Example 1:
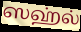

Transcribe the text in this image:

ஸஹ்ல்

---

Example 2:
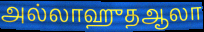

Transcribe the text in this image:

அல்லாஹுதஆலா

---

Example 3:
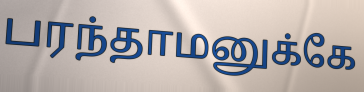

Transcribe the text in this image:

பரந்தாமனுக்கே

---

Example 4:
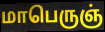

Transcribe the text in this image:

மாபெருஞ்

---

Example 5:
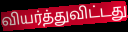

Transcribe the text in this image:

வியர்த்துவிட்டது